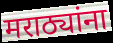
मराठ्यांना